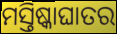
ମସ୍ତିଷ୍କାଘାତର